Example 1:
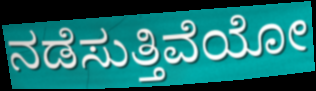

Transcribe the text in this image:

ನಡೆಸುತ್ತಿವೆಯೋ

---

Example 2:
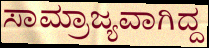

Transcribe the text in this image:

ಸಾಮ್ರಾಜ್ಯವಾಗಿದ್ದ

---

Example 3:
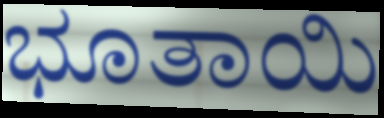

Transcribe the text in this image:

ಭೂತಾಯಿ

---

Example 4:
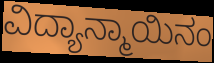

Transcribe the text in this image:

ವಿದ್ಯಾನ್ಮಾಯಿನಂ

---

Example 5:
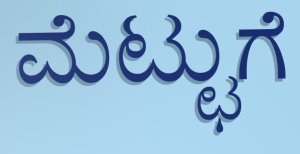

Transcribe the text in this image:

ಮೆಟ್ಟುಗೆ